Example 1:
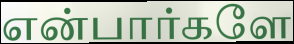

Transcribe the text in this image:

என்பார்களே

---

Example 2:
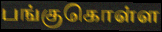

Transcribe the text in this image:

பங்குகொள்ள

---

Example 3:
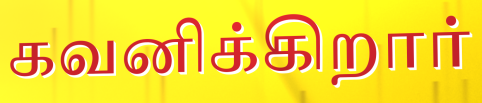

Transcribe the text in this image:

கவனிக்கிறார்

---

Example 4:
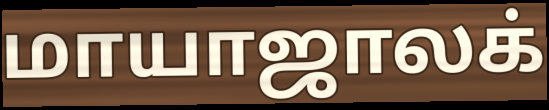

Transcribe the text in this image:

மாயாஜாலக்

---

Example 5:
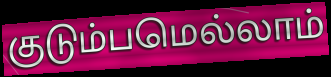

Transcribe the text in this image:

குடும்பமெல்லாம்